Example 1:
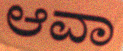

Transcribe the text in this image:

ಆವಾ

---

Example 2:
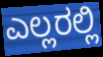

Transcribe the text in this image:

ಎಲ್ಲರಲ್ಲಿ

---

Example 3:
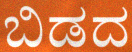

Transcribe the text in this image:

ಬಿಡದ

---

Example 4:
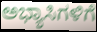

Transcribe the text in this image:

ಅಭ್ಯಾಸಿಗಳಿಗೆ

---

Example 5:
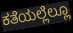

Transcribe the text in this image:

ಕತೆಯಲ್ಲೆಲ್ಲೂ